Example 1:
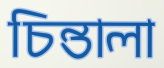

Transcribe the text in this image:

চিন্তালা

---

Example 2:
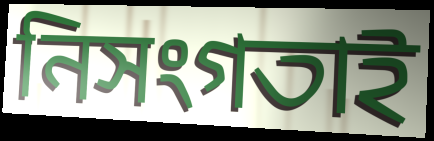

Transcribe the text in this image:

নিসংগতাই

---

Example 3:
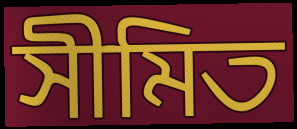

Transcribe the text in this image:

সীমিত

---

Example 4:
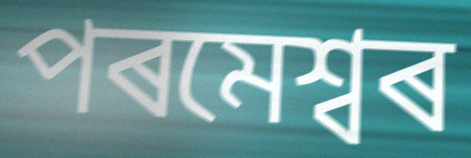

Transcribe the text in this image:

পৰমেশ্বৰ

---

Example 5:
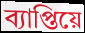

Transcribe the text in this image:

ব্য়াপ্তিয়ে